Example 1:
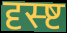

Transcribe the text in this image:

दृस्ष्ट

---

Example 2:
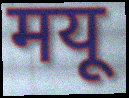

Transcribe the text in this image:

मयू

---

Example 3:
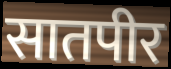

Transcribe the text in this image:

सातपीर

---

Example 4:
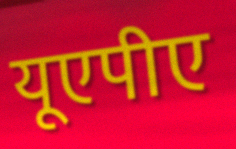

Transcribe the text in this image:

यूएपीए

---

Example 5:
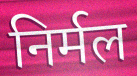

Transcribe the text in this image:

निर्मल